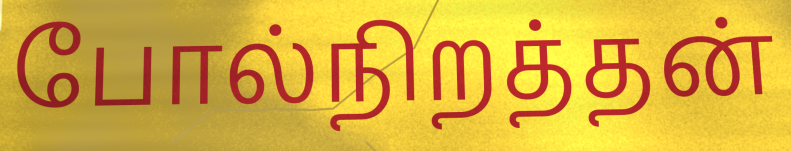
போல்நிறத்தன்